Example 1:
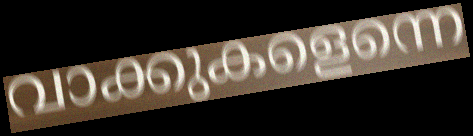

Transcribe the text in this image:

വാക്കുകളെന്നെ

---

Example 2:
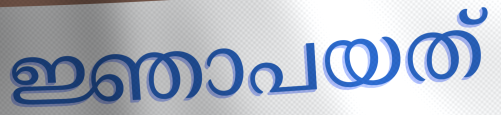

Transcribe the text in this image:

ജ്ഞാപയത്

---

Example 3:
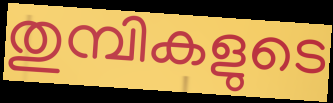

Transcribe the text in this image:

തുമ്പികളുടെ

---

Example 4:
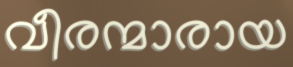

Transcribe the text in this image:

വീരന്മാരായ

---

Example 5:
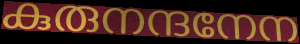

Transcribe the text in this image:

കുരുനന്ദനേന